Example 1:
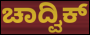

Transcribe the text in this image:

ಚಾದ್ವಿಕ್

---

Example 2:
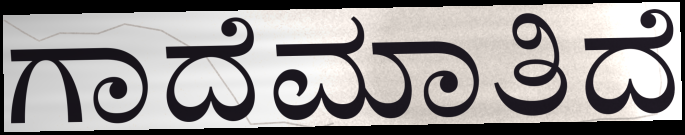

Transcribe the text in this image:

ಗಾದೆಮಾತಿದೆ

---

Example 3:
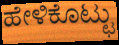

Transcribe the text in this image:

ಹೇಳಿಕೊಟ್ಟು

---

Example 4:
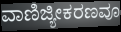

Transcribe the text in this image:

ವಾಣಿಜ್ಯೀಕರಣವೂ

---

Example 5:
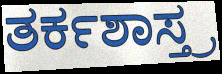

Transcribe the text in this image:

ತರ್ಕಶಾಸ್ತ್ರ